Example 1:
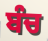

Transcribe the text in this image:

ਬੰਚ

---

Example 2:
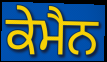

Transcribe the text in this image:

ਕੇਮੈਨ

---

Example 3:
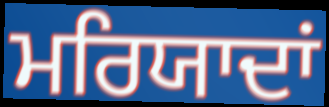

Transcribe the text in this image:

ਮਰਿਯਾਦਾਂ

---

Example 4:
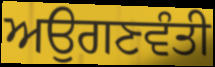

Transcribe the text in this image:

ਅਉਗਣਵੰਤੀ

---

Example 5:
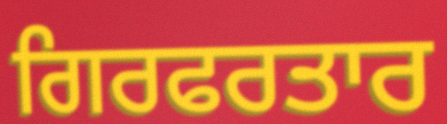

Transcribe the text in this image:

ਗਿਰਫਰਤਾਰ